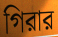
গিরার